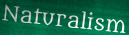
Naturalism